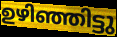
ഉഴിഞ്ഞിട്ടു